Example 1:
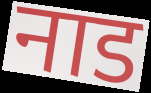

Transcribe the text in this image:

नाड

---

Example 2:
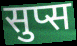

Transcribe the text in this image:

सुप्स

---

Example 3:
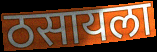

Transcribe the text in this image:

ठसायला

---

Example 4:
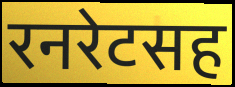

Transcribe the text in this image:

रनरेटसह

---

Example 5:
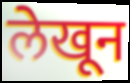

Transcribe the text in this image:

लेखून